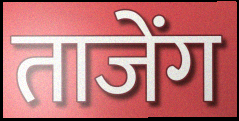
ताजेंग